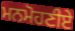
ਮਨਮੋਹਣੀਏ